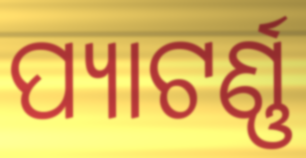
ପ୍ୟାଟର୍ଣ୍ଣ